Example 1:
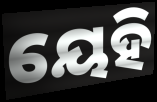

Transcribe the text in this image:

ୟେହି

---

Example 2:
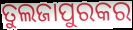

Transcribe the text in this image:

ତୁଲଜାପୁରକର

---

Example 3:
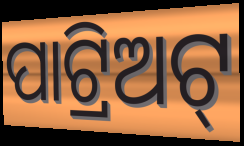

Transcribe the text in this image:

ପାଟ୍ରିଅଟ୍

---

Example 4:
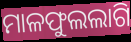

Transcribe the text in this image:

ମାଳଫୁଲଲାଗି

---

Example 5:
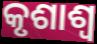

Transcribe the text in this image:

କୃଶାଶ୍ୱ